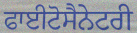
ਫਾਈਟੋਸੈਨੇਟਰੀ